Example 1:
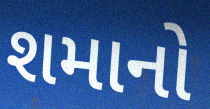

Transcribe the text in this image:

શમાનો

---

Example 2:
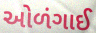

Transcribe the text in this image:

ઓળંગાઈ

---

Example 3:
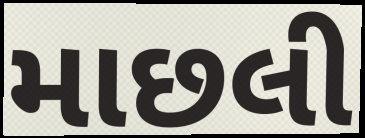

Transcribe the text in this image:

માછલી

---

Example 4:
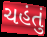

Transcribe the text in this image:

ચહંતું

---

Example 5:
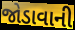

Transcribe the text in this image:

જોડાવાની